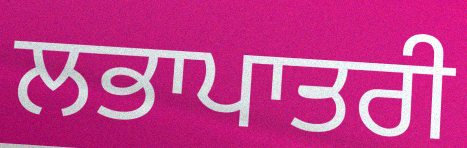
ਲਭਾਪਾਤਰੀ